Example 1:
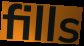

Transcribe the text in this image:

fills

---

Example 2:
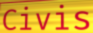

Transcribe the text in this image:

Civis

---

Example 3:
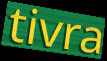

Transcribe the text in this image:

tivra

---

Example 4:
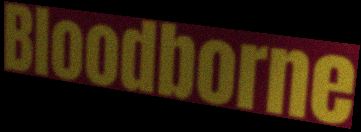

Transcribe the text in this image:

Bloodborne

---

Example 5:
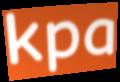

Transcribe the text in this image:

kpa